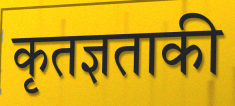
कृतज्ञताकी